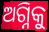
ଅଗ୍ନିକୁ